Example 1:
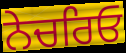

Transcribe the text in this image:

ਨੇਚਰਿਓ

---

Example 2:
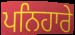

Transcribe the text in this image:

ਪਨਿਹਾਰੇ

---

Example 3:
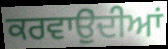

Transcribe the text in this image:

ਕਰਵਾਉੁਂਦੀਆਂ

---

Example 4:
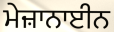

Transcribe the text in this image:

ਮੇਜ਼ਾਨਾਈਨ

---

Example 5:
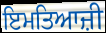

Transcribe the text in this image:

ਇਮਤਿਆਜ਼ੀ